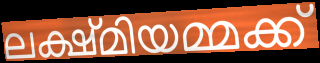
ലക്ഷ്മിയമ്മക്ക്